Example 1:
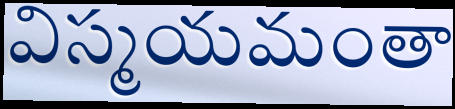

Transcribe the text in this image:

విస్మయమంతా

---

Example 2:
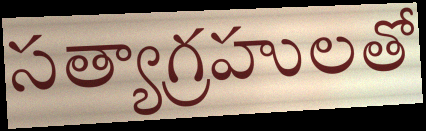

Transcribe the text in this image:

సత్యాగ్రహులతో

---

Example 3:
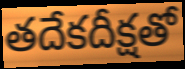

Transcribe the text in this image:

తదేకదీక్షతో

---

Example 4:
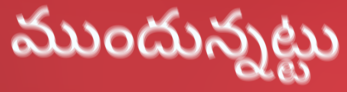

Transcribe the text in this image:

ముందున్నట్టు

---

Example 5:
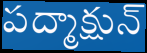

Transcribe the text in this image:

పద్మాక్షున్